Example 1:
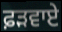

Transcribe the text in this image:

ਫ਼ੜਵਾਏ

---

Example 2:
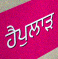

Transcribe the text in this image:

ਹੈਪੁਲਾੜ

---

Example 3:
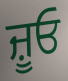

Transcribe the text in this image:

ਜ਼ੂਓ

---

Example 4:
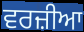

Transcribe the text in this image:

ਵਰਜ਼ੀਆ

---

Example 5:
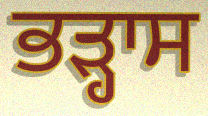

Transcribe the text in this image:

ਭੜ੍ਹਾਸ